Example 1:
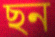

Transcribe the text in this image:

ছন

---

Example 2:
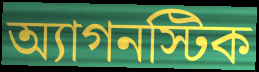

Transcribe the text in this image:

অ্যাগনস্টিক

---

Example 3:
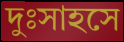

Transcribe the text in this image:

দুঃসাহসে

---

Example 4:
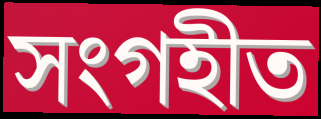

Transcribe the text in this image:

সংগহীত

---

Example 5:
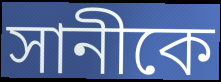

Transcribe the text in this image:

সানীকে